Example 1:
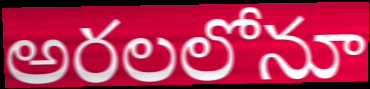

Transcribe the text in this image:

అరలలోనూ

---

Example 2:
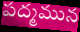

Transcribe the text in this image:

పద్మమున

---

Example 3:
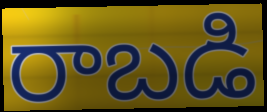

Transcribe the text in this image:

రాబడి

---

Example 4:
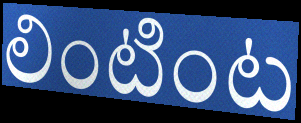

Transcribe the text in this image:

లింటింట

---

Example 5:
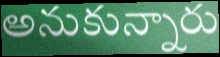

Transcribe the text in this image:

అనుకున్నారు